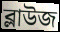
ব্লাউজ